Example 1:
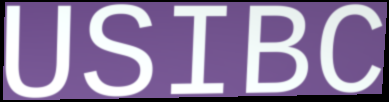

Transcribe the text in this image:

USIBC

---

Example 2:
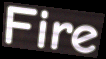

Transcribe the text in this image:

Fire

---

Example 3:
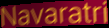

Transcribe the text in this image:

Navaratri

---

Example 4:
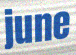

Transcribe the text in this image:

june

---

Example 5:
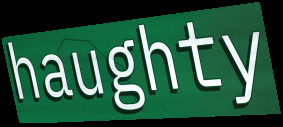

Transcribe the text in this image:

haughty